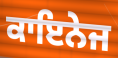
ਕਾਇਨੇਜ